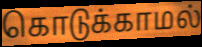
கொடுக்காமல்